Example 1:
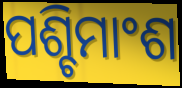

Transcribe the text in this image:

ପଶ୍ଚିମାଂଶ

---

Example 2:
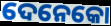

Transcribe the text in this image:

ଦେନେକୋ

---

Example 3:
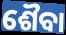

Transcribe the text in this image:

ଶୈବା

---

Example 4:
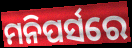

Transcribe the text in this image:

ମନିପର୍ସରେ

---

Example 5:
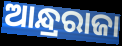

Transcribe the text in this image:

ଆନ୍ଧ୍ରରାଜା